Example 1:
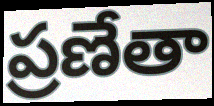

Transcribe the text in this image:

ప్రణేతా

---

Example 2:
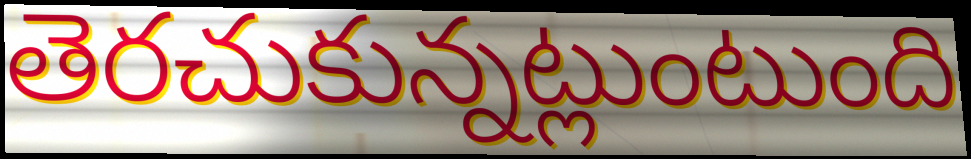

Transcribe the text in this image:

తెరచుకున్నట్లుంటుంది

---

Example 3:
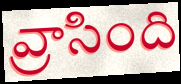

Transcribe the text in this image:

వ్రాసింది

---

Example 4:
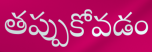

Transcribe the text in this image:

తప్పుకోవడం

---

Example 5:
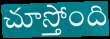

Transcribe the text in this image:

చూస్తోంది